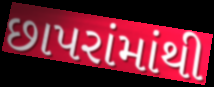
છાપરાંમાંથી